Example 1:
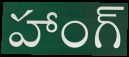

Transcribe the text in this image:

హాంగ్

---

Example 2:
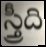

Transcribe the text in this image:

స్త్రీది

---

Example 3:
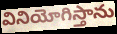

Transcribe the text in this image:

వినియోగిస్తాను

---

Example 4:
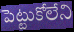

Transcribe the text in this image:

పెట్టుకోలేని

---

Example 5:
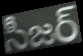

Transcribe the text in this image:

సీజర్